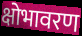
क्षोभावरण